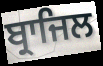
ਬ੍ਰਾਜਿਲ